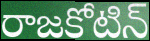
రాజకోటిన్